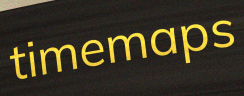
timemaps